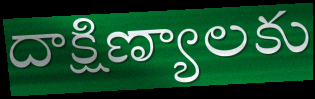
దాక్షిణ్యాలకు